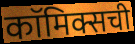
कॉमिक्सची